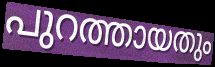
പുറത്തായതും